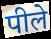
पीले